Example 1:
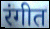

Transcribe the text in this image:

रंगीत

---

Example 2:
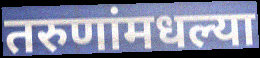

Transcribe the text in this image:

तरुणांमधल्या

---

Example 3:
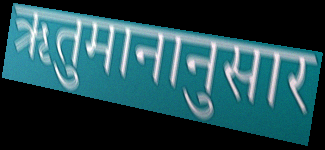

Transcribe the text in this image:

ऋतुमानानुसार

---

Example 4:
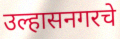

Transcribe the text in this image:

उल्हासनगरचे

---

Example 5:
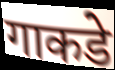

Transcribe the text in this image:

गाकडे